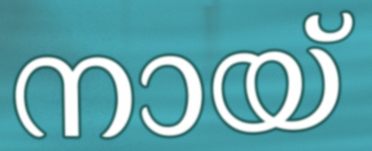
നായ്